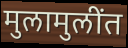
मुलामुलींत